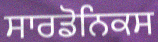
ਸਾਰਡੋਨਿਕਸ